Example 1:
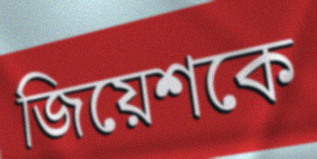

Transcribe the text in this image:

জিয়েশকে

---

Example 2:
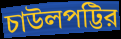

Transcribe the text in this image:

চাউলপট্টির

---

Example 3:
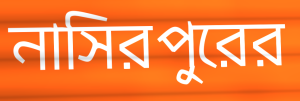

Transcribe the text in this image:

নাসিরপুরের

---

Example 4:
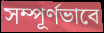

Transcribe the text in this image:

সম্পূর্ণভাবে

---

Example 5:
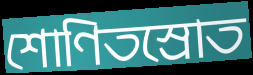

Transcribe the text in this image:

শোণিতস্রোত